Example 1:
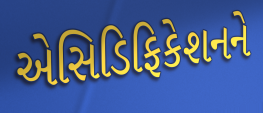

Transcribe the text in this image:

એસિડિફિકેશનને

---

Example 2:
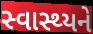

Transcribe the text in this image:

સ્વાસ્થ્યને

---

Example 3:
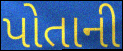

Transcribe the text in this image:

પોતાની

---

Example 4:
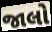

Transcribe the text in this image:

જાલો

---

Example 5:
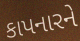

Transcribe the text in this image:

કાપનારને